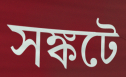
সঙ্কটে